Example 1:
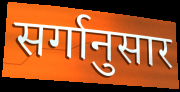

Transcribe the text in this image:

सर्गानुसार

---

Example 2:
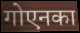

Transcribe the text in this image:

गोएनका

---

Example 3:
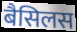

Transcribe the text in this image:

बैसिलस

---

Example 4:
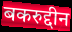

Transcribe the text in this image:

बकरुद्दीन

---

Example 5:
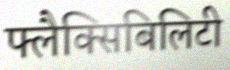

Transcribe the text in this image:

फ्लैक्सिबिलिटी